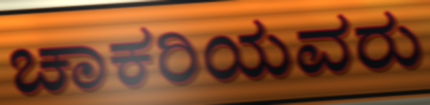
ಚಾಕರಿಯವರು